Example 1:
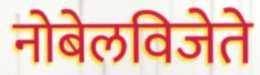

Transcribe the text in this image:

नोबेलविजेते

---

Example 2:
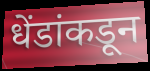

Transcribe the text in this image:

धेंडांकडून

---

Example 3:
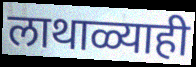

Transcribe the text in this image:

लाथाळ्याही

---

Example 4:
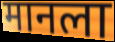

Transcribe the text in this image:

मानला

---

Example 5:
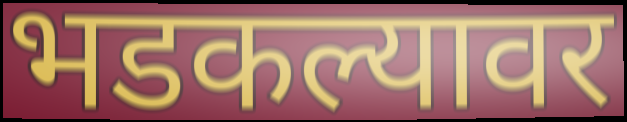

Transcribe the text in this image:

भडकल्यावर